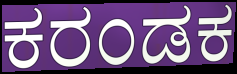
ಕರಂಡಕ